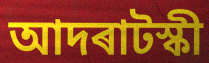
আদৰাটস্কী